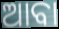
ଆବା